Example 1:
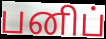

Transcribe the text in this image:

பனிப்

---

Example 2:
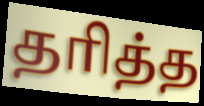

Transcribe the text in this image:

தரித்த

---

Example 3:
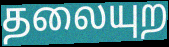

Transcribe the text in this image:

தலையுற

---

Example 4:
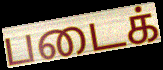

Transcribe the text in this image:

படைக்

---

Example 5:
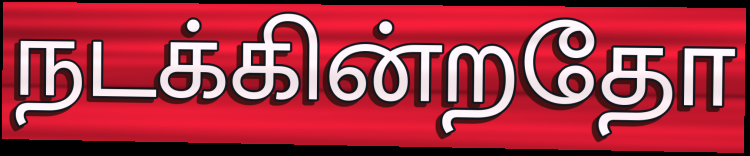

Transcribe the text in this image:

நடக்கின்றதோ